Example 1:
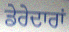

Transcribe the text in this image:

ਡੇਰੇਦਾਰਾਂ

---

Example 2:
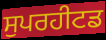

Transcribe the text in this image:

ਸੁਪਰਹੀਟਡ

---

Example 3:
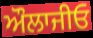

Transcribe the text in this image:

ਔਲਾਜੀਓ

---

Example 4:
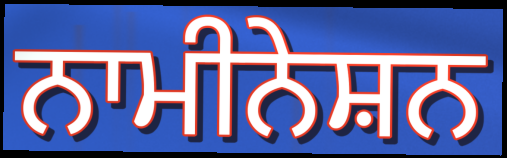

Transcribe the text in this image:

ਨਾਮੀਨੇਸ਼ਨ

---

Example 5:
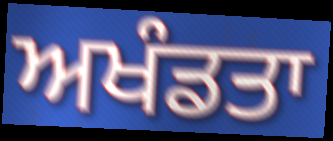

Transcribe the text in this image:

ਅਖੰਡਤਾ